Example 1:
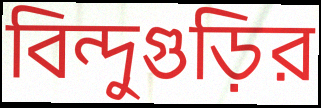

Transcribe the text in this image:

বিন্দুগুড়ির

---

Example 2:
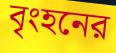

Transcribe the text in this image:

বৃংহনের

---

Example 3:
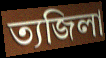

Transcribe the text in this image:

ত্যজিলা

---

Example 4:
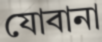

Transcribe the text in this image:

যোবানা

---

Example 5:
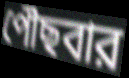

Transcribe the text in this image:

পৌছবার